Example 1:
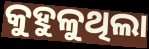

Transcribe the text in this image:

କୁହୁଳୁଥିଲା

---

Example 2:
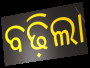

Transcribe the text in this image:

ବଢ଼ିଲା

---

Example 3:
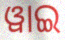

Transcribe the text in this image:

ୱାଇ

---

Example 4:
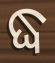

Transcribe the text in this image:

ଦ୍ଧ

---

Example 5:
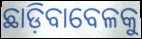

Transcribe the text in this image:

ଛାଡ଼ିବାବେଳକୁ